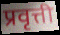
प्रवृत्ती